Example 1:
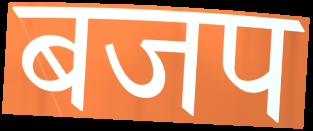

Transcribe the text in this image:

बजप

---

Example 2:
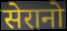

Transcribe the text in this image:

सेरानो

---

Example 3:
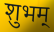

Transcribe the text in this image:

शुभम्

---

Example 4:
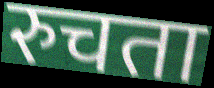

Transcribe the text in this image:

रुचता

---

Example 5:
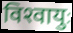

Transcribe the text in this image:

विश्वायुः